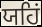
ਯਹਿਂ